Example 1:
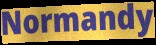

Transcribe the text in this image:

Normandy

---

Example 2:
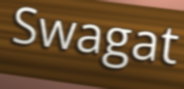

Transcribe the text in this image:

Swagat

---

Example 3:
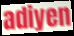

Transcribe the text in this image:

adiyen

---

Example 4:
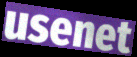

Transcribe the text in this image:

usenet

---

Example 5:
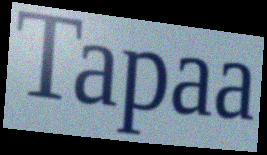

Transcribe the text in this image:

Tapaa